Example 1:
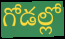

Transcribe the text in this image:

గోడల్లో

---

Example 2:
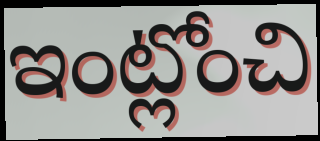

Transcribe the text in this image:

ఇంట్లోంచి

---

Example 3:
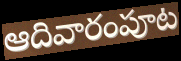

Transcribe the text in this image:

ఆదివారంపూట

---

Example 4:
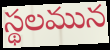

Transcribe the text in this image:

స్థలమున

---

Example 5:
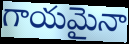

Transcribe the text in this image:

గాయమైనా